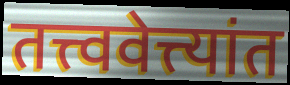
तत्त्ववेत्त्यांत